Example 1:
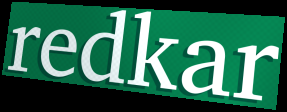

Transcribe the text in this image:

redkar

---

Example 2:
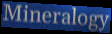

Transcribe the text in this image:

Mineralogy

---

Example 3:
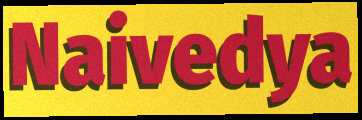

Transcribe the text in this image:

Naivedya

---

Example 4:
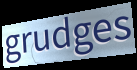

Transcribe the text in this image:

grudges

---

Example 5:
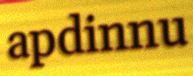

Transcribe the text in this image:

apdinnu